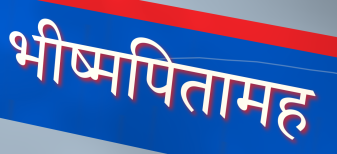
भीष्मपितामह